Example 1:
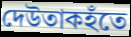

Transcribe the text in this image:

দেউতাকহঁতে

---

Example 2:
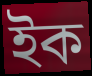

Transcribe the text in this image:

ইক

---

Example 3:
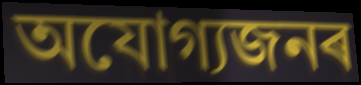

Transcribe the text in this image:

অযোগ্যজনৰ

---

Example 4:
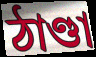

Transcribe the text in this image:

ঠাণ্ডা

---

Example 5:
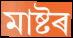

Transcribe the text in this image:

মাষ্টৰ